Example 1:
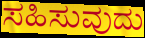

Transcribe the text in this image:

ಸಹಿಸುವುದು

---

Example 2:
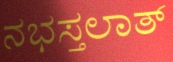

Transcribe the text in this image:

ನಭಸ್ತಲಾತ್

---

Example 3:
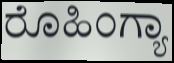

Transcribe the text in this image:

ರೊಹಿಂಗ್ಯಾ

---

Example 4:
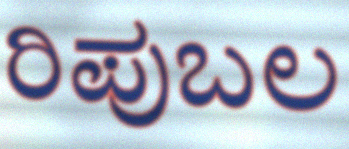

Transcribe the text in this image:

ರಿಪುಬಲ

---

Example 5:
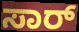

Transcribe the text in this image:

ಸಾರ್